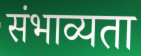
संभाव्यता